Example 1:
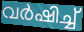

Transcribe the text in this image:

വർഷിച്ച്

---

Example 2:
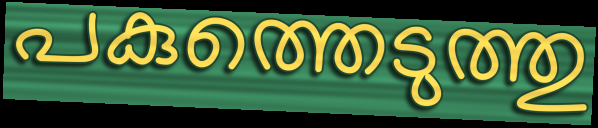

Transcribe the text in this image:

പകുത്തെടുത്തു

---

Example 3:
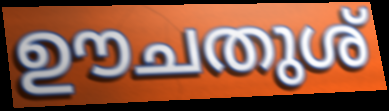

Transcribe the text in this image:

ഊചതുശ്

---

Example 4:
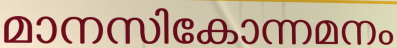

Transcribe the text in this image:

മാനസികോന്നമനം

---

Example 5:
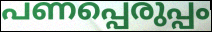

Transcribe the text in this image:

പണപ്പെരുപ്പം